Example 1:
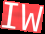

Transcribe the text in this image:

IW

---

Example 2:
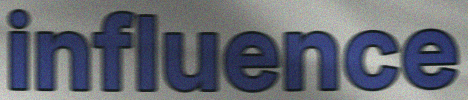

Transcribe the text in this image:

influence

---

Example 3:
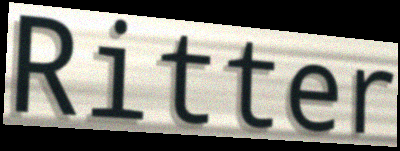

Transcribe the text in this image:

Ritter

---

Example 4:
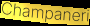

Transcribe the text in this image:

Champaneri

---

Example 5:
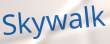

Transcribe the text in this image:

Skywalk